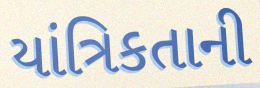
યાંત્રિકતાની